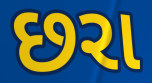
છરા